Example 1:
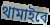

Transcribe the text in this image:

থামাইবে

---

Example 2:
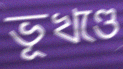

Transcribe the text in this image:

ভূখণ্ডে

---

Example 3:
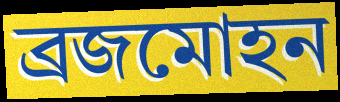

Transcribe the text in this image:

ব্রজমোহন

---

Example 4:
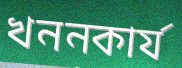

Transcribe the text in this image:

খননকার্য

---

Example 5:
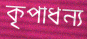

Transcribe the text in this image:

কৃপাধন্য